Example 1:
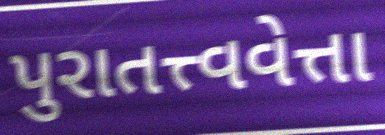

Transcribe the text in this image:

પુરાતત્ત્વવેત્તા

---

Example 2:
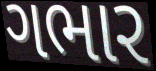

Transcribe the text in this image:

ગભાર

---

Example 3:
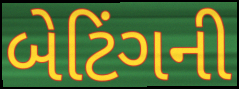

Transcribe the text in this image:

બેટિંગની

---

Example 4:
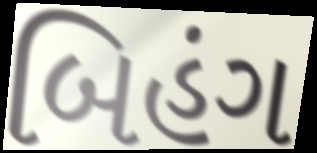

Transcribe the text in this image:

બિહંગ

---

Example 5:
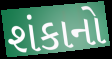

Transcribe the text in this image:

શંકાનો